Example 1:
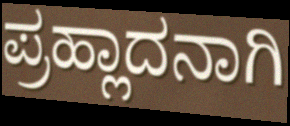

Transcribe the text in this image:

ಪ್ರಹ್ಲಾದನಾಗಿ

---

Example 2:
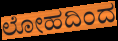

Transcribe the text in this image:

ಲೋಹದಿಂದ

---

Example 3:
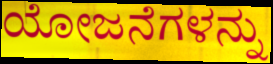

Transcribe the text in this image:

ಯೋಜನೆಗಳನ್ನು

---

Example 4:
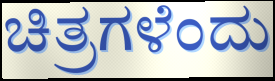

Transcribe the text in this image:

ಚಿತ್ರಗಳೆಂದು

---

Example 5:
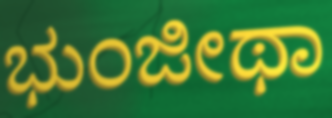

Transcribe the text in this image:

ಭುಂಜೀಥಾ